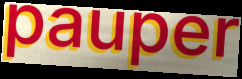
pauper